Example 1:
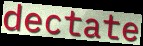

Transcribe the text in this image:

dectate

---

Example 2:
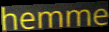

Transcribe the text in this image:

hemme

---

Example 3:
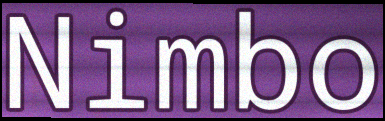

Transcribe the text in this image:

Nimbo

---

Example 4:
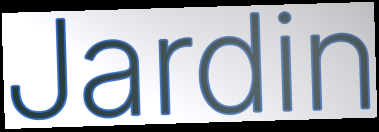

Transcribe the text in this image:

Jardin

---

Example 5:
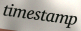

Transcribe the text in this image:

timestamp